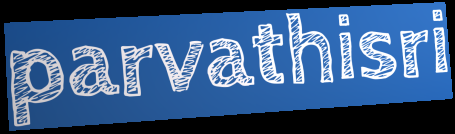
parvathisri